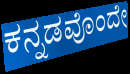
ಕನ್ನಡವೊಂದೇ